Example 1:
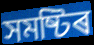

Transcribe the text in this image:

সমষ্টিৰ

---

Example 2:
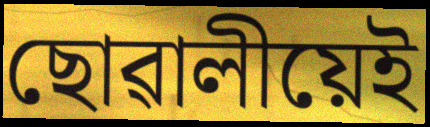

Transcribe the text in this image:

ছোৱালীয়েই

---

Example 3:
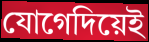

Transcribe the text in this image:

যোগেদিয়েই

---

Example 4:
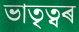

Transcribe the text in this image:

ভাতৃত্বৰ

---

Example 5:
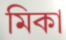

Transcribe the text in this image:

মিকা